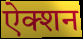
ऐक्‍शन